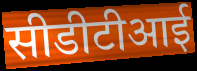
सीडीटीआई